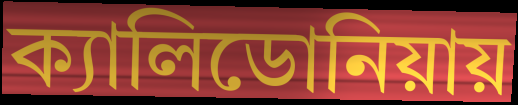
ক্যালিডোনিয়ায়